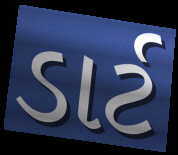
ડાર્ટ